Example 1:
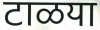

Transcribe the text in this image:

टाळया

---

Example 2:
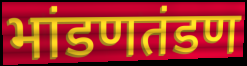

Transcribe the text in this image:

भांडणतंडण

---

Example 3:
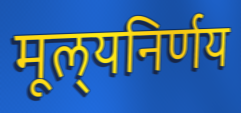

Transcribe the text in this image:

मूल्यनिर्णय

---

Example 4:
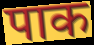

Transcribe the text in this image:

पाक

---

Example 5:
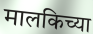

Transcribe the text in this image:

मालकिच्या